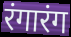
रंगारंग